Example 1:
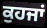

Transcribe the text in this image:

ਕੁਹਜਾਂ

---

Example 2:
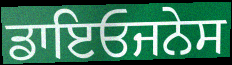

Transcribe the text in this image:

ਡਾਇਓਜਨੇਸ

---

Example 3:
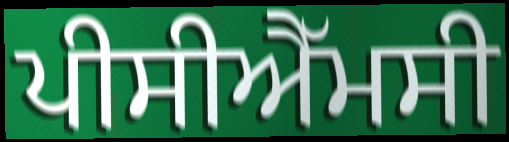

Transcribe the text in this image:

ਪੀਸੀਐੱਮਸੀ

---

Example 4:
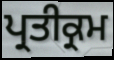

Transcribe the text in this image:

ਪ੍ਰਤੀਕ੍ਰਮ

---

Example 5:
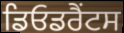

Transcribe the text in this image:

ਡਿਓਡਰੈਂਟਸ